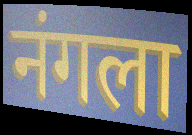
नंगला